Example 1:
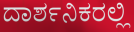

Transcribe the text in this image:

ದಾರ್ಶನಿಕರಲ್ಲಿ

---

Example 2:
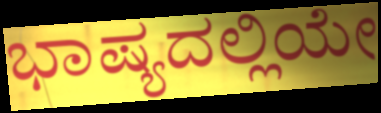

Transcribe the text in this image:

ಭಾಷ್ಯದಲ್ಲಿಯೇ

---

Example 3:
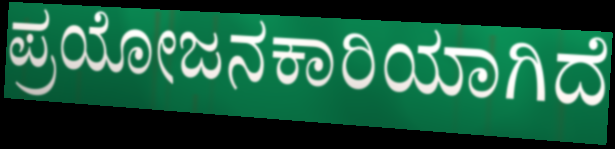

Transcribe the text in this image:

ಪ್ರಯೋಜನಕಾರಿಯಾಗಿದೆ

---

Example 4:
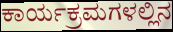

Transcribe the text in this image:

ಕಾರ್ಯಕ್ರಮಗಳಲ್ಲಿನ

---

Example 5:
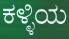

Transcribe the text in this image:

ಕಳ್ಳಿಯ